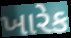
ખારેક